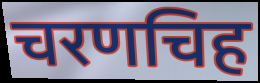
चरणचिह